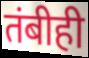
तंबीही